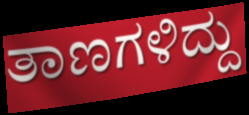
ತಾಣಗಳಿದ್ದು